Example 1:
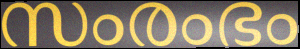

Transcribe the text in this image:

സംരംഭം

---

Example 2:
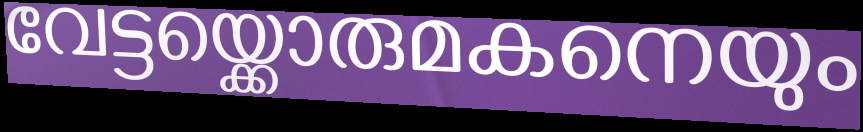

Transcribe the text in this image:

വേട്ടയ്ക്കൊരുമകനെയും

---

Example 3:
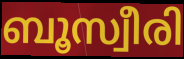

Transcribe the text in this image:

ബൂസ്വീരി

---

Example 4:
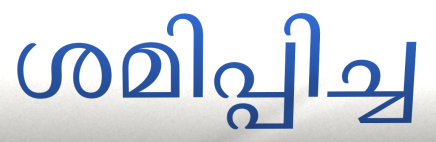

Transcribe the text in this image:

ശമിപ്പിച്ച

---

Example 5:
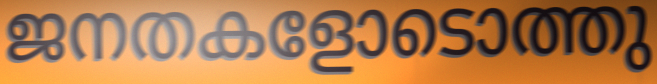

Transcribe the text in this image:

ജനതകളോടൊത്തു